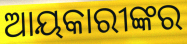
ଆୟକାରୀଙ୍କର